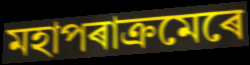
মহাপৰাক্ৰমেৰে